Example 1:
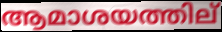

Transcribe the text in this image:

ആമാശയത്തില്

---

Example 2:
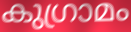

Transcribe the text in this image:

കുഗ്രാമം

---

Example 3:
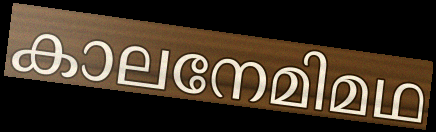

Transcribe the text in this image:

കാലനേമിമഥ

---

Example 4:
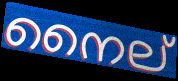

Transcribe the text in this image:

നൈല്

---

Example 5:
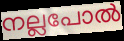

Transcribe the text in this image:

നല്ലപോൽ